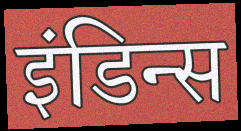
इंडिन्स